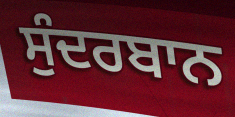
ਸੁੰਦਰਬਾਨ